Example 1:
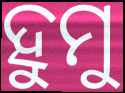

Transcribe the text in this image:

ହୁମୁ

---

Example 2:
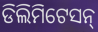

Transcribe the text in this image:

ଡିଲିମିଟେସନ୍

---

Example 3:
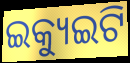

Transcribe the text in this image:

ଇକ୍ୟୁଇଟି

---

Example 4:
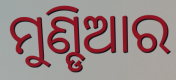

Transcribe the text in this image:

ମୁଣ୍ଡିଆର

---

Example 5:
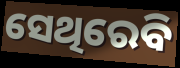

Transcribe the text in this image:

ସେଥିରେବି